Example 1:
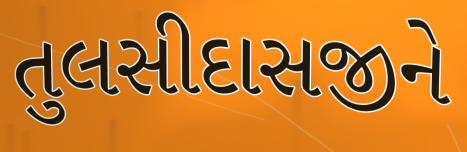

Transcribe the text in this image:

તુલસીદાસજીને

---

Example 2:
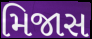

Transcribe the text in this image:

મિજાસ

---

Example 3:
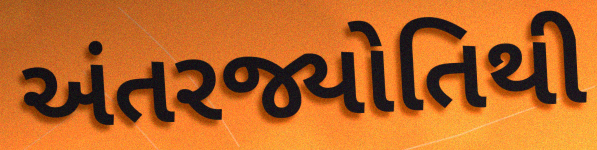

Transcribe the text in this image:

અંતરજ્યોતિથી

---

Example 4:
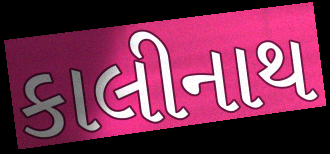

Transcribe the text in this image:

કાલીનાથ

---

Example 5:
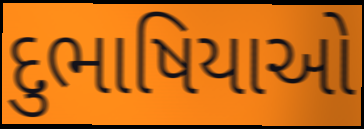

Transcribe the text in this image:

દુભાષિયાઓ